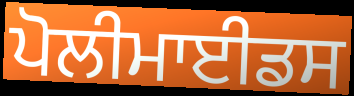
ਪੋਲੀਮਾਈਡਸ